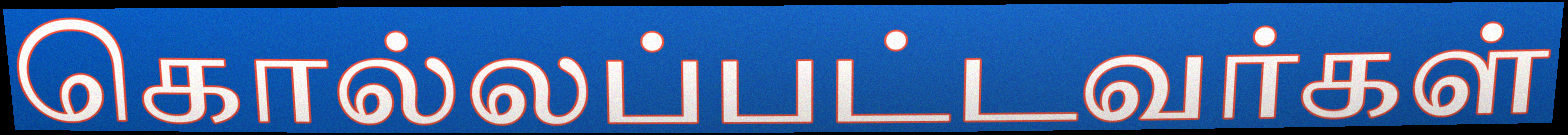
கொல்லப்பட்டவர்கள்